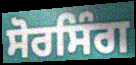
ਸੋਰਸਿੰਗ